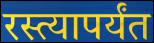
रस्त्यापर्यंत